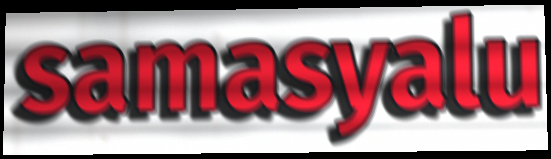
samasyalu